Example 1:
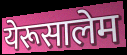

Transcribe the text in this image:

येरूसालेम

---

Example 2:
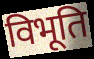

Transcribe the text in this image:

विभूति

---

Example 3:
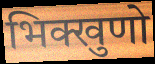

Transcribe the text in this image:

भिक्खुणो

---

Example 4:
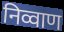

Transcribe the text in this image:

निव्वाण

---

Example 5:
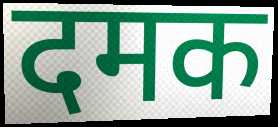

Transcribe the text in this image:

दमक